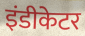
इंडीकेटर